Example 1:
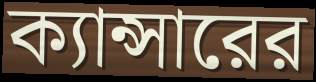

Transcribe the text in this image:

ক্যান্সারের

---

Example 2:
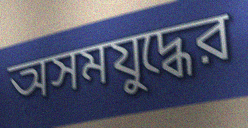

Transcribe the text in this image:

অসমযুদ্ধের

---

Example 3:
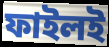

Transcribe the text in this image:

ফাইলই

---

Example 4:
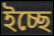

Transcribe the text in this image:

ইচ্ছে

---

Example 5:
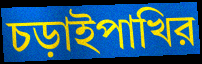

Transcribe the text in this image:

চড়াইপাখির